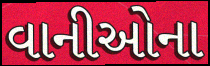
વાનીઓના